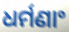
ଧର୍ମଣାଂ